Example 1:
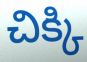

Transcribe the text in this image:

చిక్కి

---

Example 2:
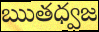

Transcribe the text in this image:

ఋతధ్వజ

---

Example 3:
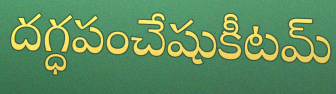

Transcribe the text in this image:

దగ్ధపంచేషుకీటమ్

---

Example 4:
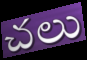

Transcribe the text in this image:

చలు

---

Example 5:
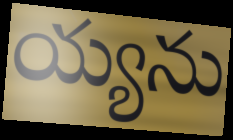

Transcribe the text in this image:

య్యను